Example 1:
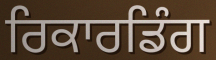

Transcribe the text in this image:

ਰਿਕਾਰਡਿੰਗ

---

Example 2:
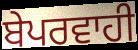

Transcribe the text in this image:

ਬੇਪਰਵਾਹੀ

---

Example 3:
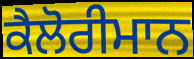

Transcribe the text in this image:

ਕੈਲੋਰੀਮਾਨ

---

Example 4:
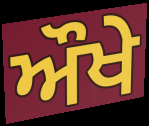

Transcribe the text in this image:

ਔਖੇ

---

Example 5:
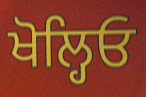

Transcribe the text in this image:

ਖੋਲ੍ਹ੍ਹਿਓ